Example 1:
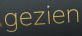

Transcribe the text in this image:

gezien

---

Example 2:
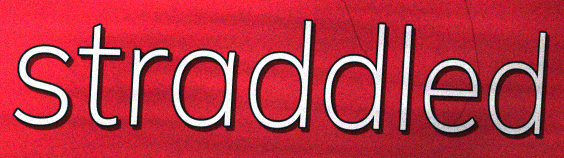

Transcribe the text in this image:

straddled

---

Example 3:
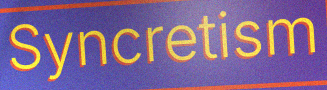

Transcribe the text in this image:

Syncretism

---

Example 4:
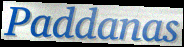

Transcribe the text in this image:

Paddanas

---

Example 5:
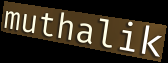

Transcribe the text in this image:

muthalik